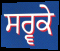
ਸਰ੍ਵਕੇ